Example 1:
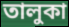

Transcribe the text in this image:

তালুকা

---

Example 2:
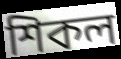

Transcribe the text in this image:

শিকল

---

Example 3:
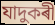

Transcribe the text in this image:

যাদুকৰী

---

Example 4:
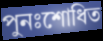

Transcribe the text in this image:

পুনঃশোধিত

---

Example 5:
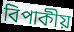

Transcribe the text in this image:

বিপাকীয়